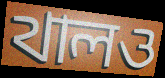
থালও